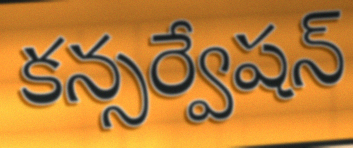
కన్సర్వేషన్